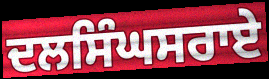
ਦਲਸਿੰਘਸਰਾਏ